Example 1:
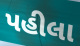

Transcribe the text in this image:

પહીલા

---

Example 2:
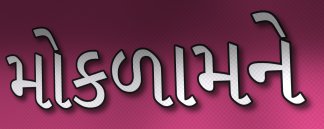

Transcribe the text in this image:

મોકળામને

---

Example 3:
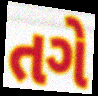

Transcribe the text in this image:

તગે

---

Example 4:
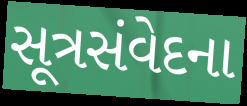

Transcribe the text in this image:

સૂત્રસંવેદના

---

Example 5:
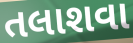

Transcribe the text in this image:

તલાશવા